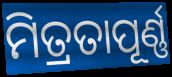
ମିତ୍ରତାପୂର୍ଣ୍ଣ